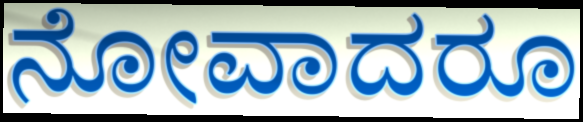
ನೋವಾದರೂ